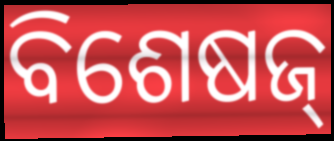
ବିଶେଷଜ୍